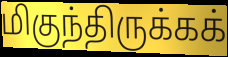
மிகுந்திருக்கக்